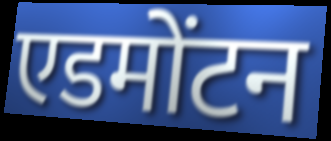
एडमोंटन